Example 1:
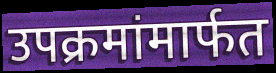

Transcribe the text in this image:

उपक्रमांमार्फत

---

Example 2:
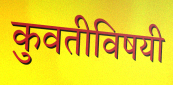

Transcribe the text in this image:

कुवतीविषयी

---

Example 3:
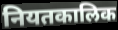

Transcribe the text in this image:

नियतकालिक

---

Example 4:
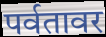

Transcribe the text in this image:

पर्वतावर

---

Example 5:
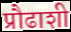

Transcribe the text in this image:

प्रौढाशी